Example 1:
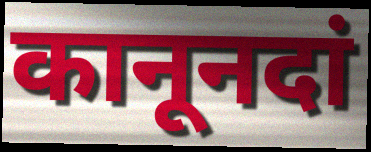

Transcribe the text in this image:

कानूनदां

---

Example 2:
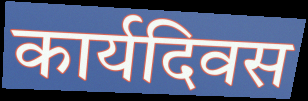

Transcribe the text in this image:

कार्यदिवस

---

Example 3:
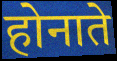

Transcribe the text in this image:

होनाते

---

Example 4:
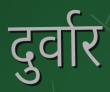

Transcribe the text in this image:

दुर्वार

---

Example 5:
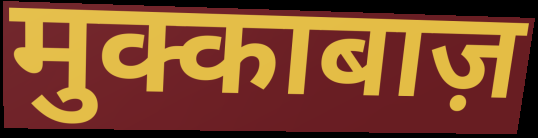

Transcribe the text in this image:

मुक्काबाज़